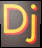
Dj